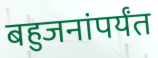
बहुजनांपर्यंत